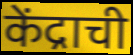
केंद्राची